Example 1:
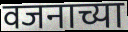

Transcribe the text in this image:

वजनाच्या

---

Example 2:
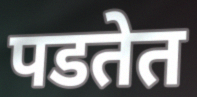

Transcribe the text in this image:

पडतेत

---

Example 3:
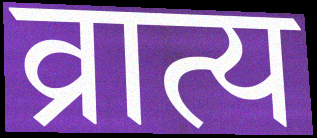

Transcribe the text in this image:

व्रात्य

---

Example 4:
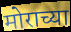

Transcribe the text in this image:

मोराच्या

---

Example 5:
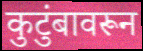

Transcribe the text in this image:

कुटुंबावरून